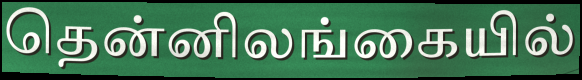
தென்னிலங்கையில்